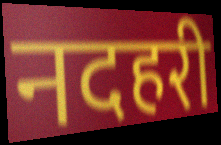
नदहरी